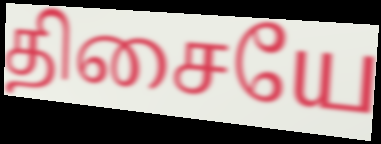
திசையே